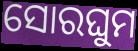
ସୋରଘୁମ